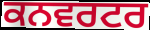
ਕਨਵਰਟਰ